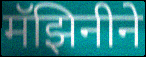
मॅझिनीने